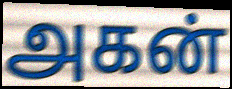
அகன்